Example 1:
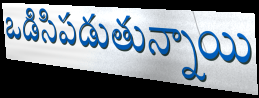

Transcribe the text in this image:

ఒడిసిపడుతున్నాయి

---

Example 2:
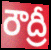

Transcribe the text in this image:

రౌద్రీ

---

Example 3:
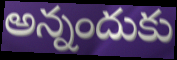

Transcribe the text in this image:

అన్నందుకు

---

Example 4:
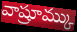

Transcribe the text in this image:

వాష్రూమ్కు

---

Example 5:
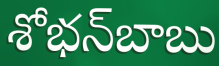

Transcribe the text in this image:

శోభన్‌బాబు